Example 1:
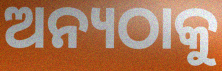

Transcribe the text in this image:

ଅନ୍ୟଠାକୁ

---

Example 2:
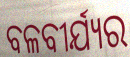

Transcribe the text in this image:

ବଳବୀର୍ଯ୍ୟର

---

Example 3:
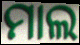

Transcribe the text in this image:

ମାଲ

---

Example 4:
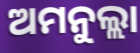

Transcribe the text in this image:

ଅମନୁଲ୍ଲା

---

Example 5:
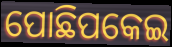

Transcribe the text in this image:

ପୋଛିପକେଇ